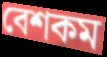
বেশকম